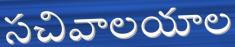
సచివాలయాల